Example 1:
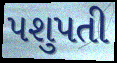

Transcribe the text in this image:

પશુપતી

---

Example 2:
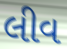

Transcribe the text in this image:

લીવ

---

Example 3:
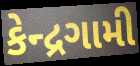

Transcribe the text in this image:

કેન્દ્રગામી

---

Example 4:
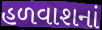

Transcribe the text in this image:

હળવાશનાં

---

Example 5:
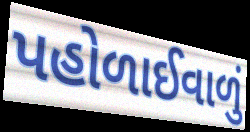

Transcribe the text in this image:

પહોળાઈવાળું